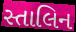
સ્તાલિન